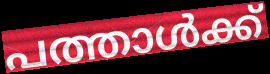
പത്താൾക്ക്